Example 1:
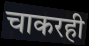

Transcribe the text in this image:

चाकरही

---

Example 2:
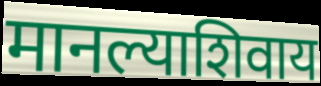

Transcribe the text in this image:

मानल्याशिवाय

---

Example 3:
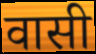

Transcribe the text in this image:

वासी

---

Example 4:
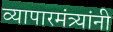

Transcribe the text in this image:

व्यापारमंत्र्यांनी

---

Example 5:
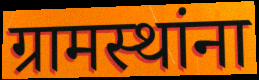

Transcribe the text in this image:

ग्रामस्थांना